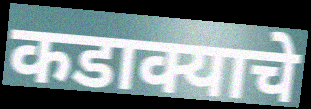
कडाक्याचे